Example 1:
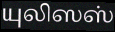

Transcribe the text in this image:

யுலிஸஸ்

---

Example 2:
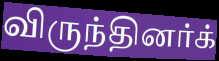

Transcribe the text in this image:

விருந்தினர்க்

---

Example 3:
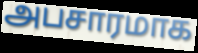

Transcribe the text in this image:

அபசாரமாக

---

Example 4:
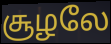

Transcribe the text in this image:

சூழலே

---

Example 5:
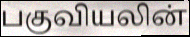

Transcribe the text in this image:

பகுவியலின்